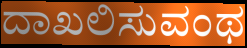
ದಾಖಲಿಸುವಂಥ